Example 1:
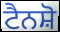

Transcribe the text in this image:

ਟੈਨਸ਼ੋ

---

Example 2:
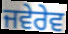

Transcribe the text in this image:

ਜਵੇਰੇਵ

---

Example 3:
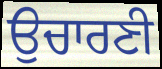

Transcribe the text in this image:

ਉਚਾਰਣੀ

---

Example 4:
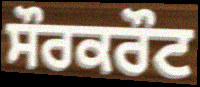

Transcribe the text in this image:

ਸੌਰਕਰੌਟ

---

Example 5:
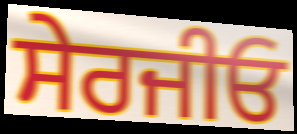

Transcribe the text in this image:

ਸੇਰਜੀਓ